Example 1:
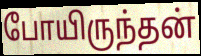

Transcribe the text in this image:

போயிருந்தன்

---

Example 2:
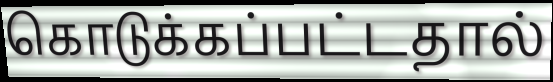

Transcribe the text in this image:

கொடுக்கப்பட்டதால்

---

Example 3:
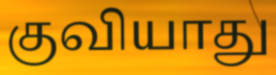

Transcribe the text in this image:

குவியாது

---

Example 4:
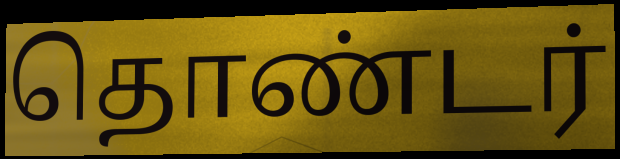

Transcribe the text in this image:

தொண்டர்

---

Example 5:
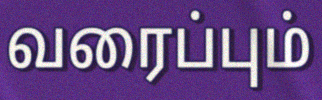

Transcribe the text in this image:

வரைப்பும்